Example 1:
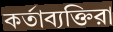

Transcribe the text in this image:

কর্তাব্যক্তিরা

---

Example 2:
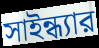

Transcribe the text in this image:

সাইন্ধ্যার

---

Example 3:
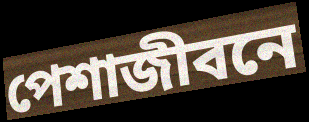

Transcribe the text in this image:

পেশাজীবনে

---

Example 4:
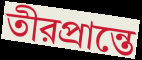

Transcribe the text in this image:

তীরপ্রান্তে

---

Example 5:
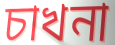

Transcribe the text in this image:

চাখনা